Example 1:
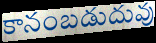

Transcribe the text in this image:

కానంబడుదువు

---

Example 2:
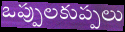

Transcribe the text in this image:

ఒప్పులకుప్పలు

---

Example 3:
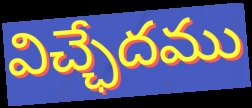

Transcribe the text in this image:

విచ్ఛేదము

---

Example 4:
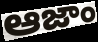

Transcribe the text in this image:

ఆజాం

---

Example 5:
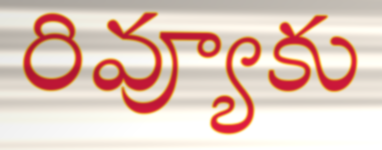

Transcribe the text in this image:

రివ్యూకు